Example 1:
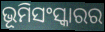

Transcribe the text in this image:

ଭୂମିସଂସ୍କାରର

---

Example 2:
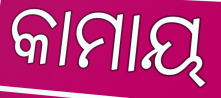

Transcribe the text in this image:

କାମାୟ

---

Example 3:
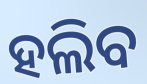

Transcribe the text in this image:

ହଲିବ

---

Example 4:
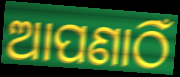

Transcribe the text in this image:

ଆପଣାଠିଁ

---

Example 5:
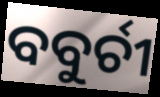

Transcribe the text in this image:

ବବୁର୍ଚୀ